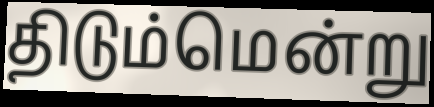
திடும்மென்று